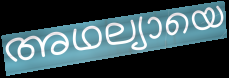
അഥല്യായെ